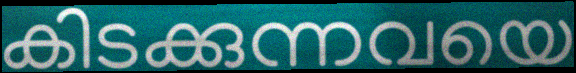
കിടക്കുന്നവയെ